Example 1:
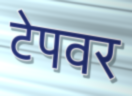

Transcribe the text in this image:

टेपवर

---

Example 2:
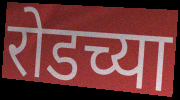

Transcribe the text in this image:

रोडच्या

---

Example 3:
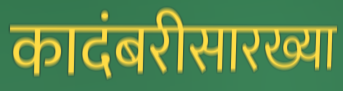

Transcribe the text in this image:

कादंबरीसारख्या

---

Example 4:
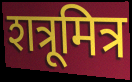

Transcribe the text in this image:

शत्रूमित्र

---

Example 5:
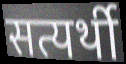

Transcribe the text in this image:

सत्यर्थी